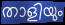
താളിയും